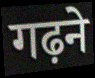
गढ़ने